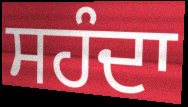
ਸਹੰਦਾ